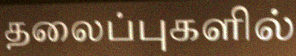
தலைப்புகளில்